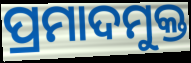
ପ୍ରମାଦମୁକ୍ତ